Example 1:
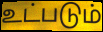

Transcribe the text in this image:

உட்படும்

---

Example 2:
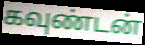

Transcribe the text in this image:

கவுண்டன்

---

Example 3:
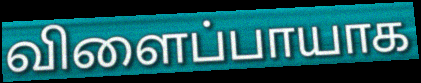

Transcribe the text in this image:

விளைப்பாயாக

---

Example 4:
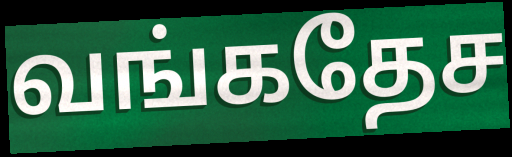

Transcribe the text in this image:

வங்கதேச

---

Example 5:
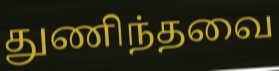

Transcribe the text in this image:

துணிந்தவை